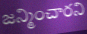
జన్మించారని